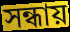
সন্ধায়